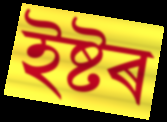
ইষ্টৰ